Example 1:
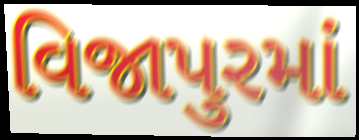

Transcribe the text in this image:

વિજાપુરમાં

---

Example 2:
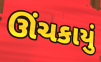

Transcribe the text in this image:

ઊંચકાયું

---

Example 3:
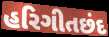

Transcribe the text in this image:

હરિગીતછંદ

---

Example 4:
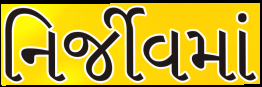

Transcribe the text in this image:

નિર્જીવમાં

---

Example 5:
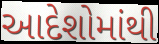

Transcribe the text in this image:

આદેશોમાંથી